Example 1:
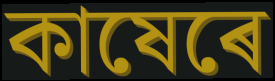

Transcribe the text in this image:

কাষেৰে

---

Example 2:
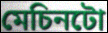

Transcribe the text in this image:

মেচিনটো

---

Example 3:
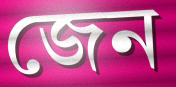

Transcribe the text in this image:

জেন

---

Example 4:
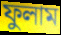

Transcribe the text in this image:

ফুলাম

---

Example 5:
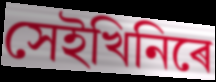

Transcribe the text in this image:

সেইখিনিৰে